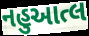
નહુઆત્લ